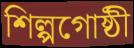
শিল্পগোষ্ঠী